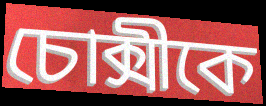
চোক্সীকে